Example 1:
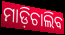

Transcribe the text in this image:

ମାଡ଼ିଚାଲିବ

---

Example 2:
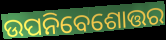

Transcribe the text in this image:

ଉପନିବେଶୋତ୍ତର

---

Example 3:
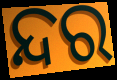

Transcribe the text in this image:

ନ୍ଦର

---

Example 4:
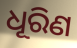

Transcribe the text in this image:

ଧୂରିଣ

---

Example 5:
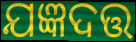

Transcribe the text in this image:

ଯଜ୍ଞଦତ୍ତ